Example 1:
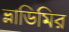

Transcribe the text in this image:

ভ্লাডিমির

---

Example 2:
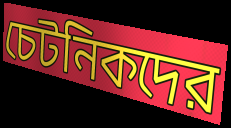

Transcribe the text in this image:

চেটনিকদের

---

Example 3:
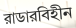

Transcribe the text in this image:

রাডারবিহীন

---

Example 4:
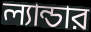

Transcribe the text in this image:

ল্যান্ডার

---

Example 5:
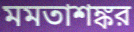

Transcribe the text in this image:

মমতাশঙ্কর